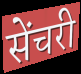
सेंचरी